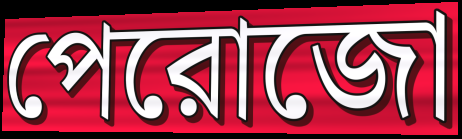
পেরোজো